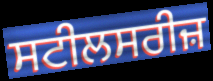
ਸਟੀਲਸਰੀਜ਼